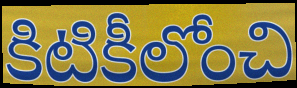
కిటికీలోంచి